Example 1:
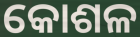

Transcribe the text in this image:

କୋଶଳ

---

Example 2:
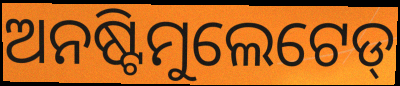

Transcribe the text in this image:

ଅନଷ୍ଟିମୁଲେଟେଡ୍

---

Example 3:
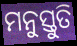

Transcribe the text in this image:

ମନୁସ୍ତୁତି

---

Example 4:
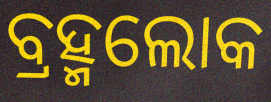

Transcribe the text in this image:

ବ୍ରହ୍ମଲୋକ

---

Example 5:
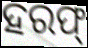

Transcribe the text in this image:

ହରଫ୍